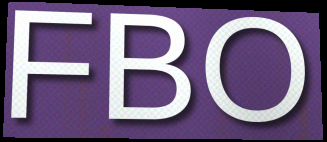
FBO